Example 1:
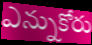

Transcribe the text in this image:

ఎన్నుకోరు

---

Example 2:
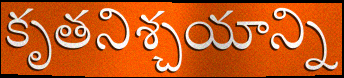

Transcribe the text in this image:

కృతనిశ్చయాన్ని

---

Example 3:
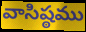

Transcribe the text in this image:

వాసిష్ఠము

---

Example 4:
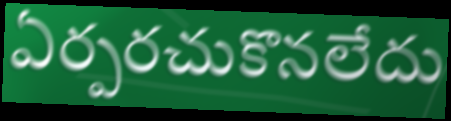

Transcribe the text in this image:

ఏర్పరచుకొనలేదు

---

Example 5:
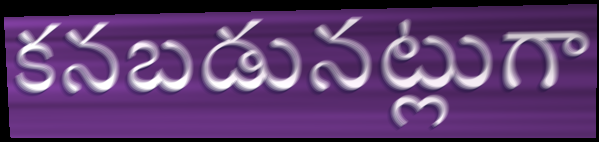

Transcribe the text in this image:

కనబడునట్లుగా